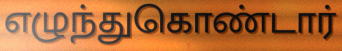
எழுந்துகொண்டார்